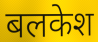
बलकेश